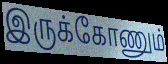
இருக்கோணும்